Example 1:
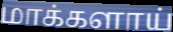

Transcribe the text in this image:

மாக்களாய்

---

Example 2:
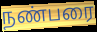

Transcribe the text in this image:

நண்பரை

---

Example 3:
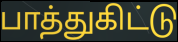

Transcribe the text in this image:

பாத்துகிட்டு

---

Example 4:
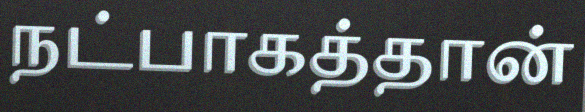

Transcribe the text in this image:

நட்பாகத்தான்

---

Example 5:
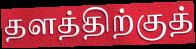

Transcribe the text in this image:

தளத்திற்குத்